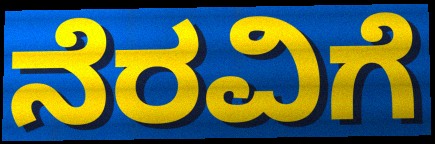
ನೆರವಿಗೆ